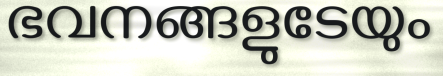
ഭവനങ്ങളുടേയും